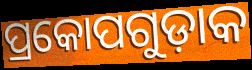
ପ୍ରକୋପଗୁଡ଼ାକ